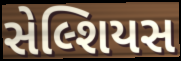
સેલ્શિયસ